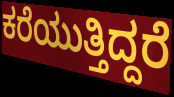
ಕರೆಯುತ್ತಿದ್ದರೆ